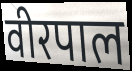
वीरपाल